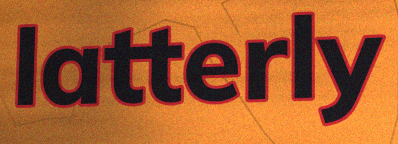
latterly